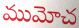
ముమోచ